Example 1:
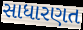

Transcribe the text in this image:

સાધારણત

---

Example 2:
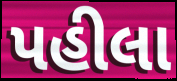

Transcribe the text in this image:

પહીલા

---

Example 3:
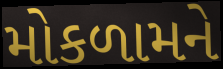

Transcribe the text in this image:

મોકળામને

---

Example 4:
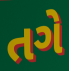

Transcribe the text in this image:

તગે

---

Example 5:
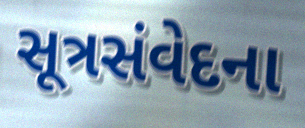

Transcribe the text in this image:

સૂત્રસંવેદના